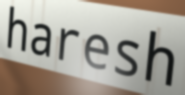
haresh